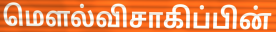
மௌல்விசாகிப்பின்